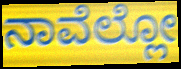
ನಾವೆಲ್ಲೋ